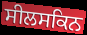
ਸੀਲਸਕਿਨ